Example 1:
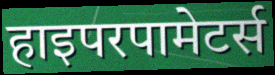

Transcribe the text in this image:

हाइपरपामेटर्स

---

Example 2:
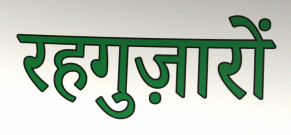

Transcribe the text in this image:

रहगुज़ारों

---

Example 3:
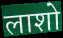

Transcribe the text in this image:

लाशो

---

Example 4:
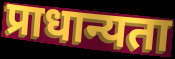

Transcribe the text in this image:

प्राधान्यता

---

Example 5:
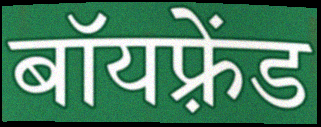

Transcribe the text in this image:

बॉयफ़्रेंड